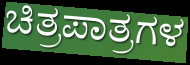
ಚಿತ್ರಪಾತ್ರಗಳ